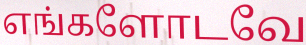
எங்களோடவே